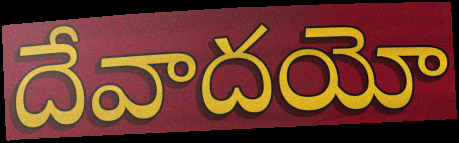
దేవాదయో